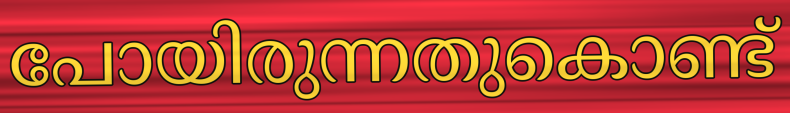
പോയിരുന്നതുകൊണ്ട്